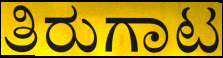
ತಿರುಗಾಟ